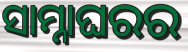
ସାମ୍ନାଘରର